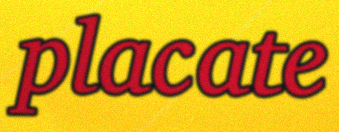
placate